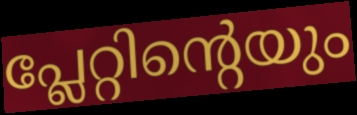
പ്ലേറ്റിന്റെയും